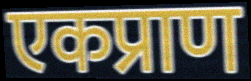
एकप्राण